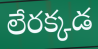
లేరక్కడ